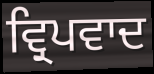
ਵ੍ਰਿਪਵਾਦ